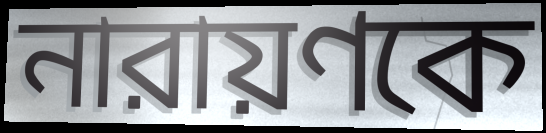
নারায়ণকে